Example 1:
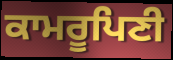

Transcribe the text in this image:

ਕਾਮਰੂਪਿਣੀ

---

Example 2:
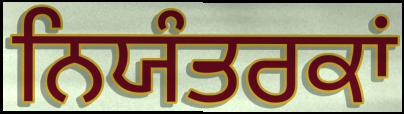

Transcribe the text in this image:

ਨਿਯੰਤਰਕਾਂ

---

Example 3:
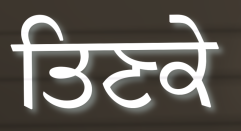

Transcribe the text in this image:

ਤਿਣਕੇ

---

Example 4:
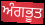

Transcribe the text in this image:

ਅੰਗਭੂਤ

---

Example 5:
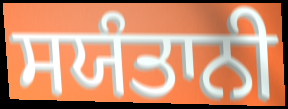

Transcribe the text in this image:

ਸਯੰਤਾਨੀ